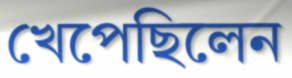
খেপেছিলেন